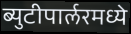
ब्युटीपार्लरमध्ये